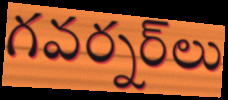
గవర్నర్‌లు